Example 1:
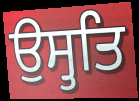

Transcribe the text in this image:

ਉਸ੍ਤਤਿ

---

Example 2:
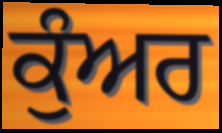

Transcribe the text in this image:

ਕੁੰਅਰ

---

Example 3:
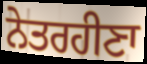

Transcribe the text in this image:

ਨੇਤਰਹੀਣਾ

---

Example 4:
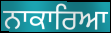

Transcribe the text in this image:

ਨਾਕਾਰਿਆ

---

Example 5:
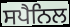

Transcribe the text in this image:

ਸਪੈਨਿਲ